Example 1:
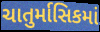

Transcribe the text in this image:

ચાતુર્માસિકમાં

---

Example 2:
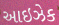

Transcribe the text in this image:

આઇઝેક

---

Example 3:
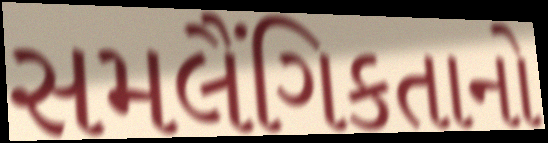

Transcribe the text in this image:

સમલૈંગિકતાનો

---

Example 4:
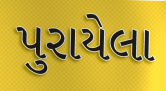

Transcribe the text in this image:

પુરાયેલા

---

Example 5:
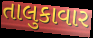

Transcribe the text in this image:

તાલુકાવાર